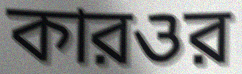
কারওর